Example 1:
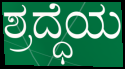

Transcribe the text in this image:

ಶ್ರದ್ಧೆಯ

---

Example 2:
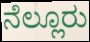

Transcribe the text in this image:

ನೆಲ್ಲೂರು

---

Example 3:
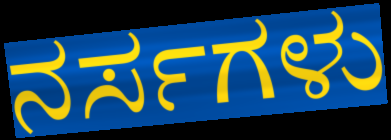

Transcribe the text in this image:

ನರ್ಸಗಳು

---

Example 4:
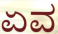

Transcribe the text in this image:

ಏವ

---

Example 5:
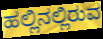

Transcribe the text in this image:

ಹಲ್ಲಿನಲ್ಲಿರುವ